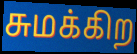
சுமக்கிற